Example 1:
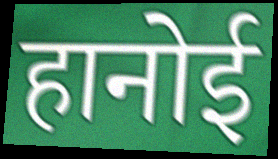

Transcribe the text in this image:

हानोई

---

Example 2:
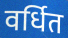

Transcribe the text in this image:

वर्धित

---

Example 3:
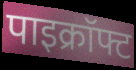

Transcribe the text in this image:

पाइक्रॉफ्ट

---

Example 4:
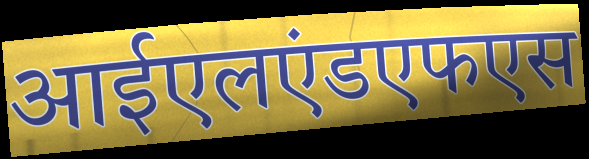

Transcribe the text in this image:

आईएलएंडएफएस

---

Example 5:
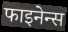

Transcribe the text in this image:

फाइनेन्स